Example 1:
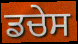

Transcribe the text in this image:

ਡਚੇਸ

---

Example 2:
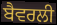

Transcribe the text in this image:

ਬੈਵਰਲੀ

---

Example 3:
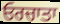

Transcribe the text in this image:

ਓਰਚਾਤਾ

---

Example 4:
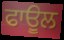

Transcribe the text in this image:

ਫਾਊਲ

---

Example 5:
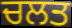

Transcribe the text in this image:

ਚਲਤ